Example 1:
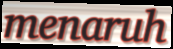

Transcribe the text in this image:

menaruh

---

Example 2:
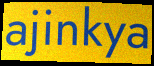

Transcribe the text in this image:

ajinkya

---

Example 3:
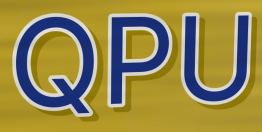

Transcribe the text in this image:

QPU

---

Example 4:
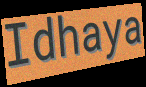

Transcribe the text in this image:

Idhaya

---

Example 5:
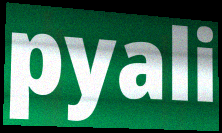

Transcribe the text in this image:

pyali